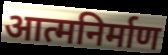
आत्मनिर्माण